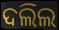
ଦଲିଲ